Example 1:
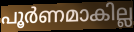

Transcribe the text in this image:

പൂർണമാകില്ല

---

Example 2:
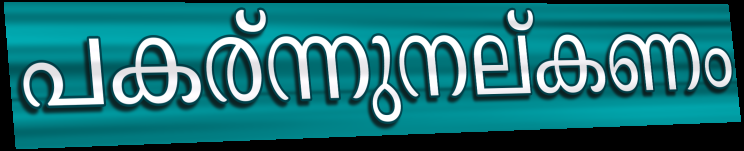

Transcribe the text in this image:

പകര്ന്നുനല്കണം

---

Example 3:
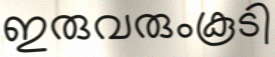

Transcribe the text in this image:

ഇരുവരുംകൂടി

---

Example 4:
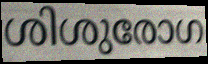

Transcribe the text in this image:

ശിശുരോഗ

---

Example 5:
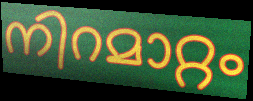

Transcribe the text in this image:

നിറമാറ്റം